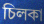
চিলকা